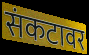
संकटावर